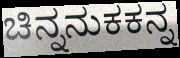
ಚಿನ್ನನುಕಕನ್ನ